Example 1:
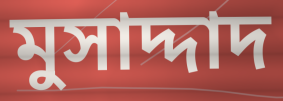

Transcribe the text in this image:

মুসাদ্দাদ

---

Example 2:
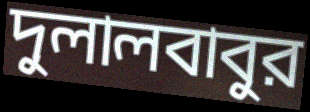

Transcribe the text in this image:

দুলালবাবুর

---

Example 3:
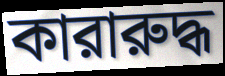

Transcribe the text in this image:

কারারুদ্ধ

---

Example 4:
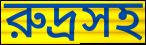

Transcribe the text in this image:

রুদ্রসহ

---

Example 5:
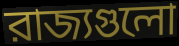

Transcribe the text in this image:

রাজ্যগুলো